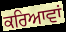
ਕਰਿਆਵਾਂ